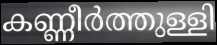
കണ്ണീർത്തുള്ളി